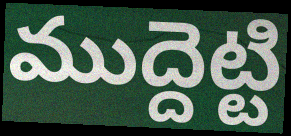
ముద్దెట్టి